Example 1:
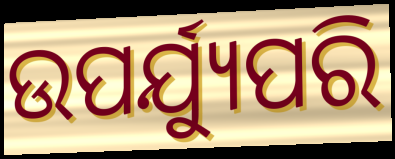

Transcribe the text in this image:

ଉପର୍ଯ୍ୟୁପରି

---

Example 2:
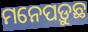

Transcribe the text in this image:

ମନେପଡ଼ୁଛ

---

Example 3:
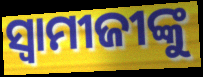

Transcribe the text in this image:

ସ୍ଵାମୀଜୀଙ୍କୁ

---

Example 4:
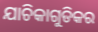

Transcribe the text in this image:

ଯାଚିକାଗୁଡିକର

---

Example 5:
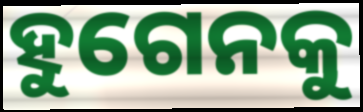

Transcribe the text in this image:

ହୁଗେନକୁ